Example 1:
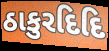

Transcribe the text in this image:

ઠાકુરદિદિ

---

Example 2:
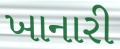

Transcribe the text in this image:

ખાનારી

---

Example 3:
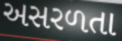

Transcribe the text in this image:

અસરળતા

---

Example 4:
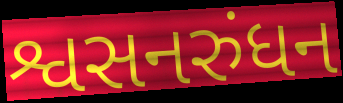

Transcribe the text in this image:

શ્વસનરુંધન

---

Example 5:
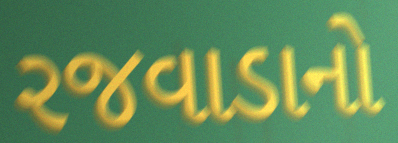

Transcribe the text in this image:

રજવાડાનો